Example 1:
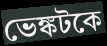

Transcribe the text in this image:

ভেঙ্কটকে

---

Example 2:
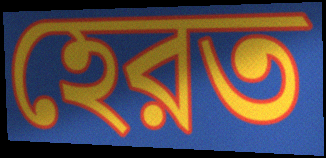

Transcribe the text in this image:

হেরত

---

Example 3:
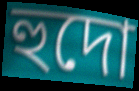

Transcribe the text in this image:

হুদো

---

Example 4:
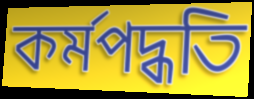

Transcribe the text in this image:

কর্মপদ্ধতি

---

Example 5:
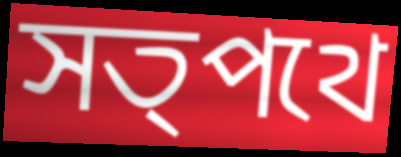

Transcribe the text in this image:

সত্পথে